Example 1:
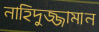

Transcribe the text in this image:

নাহিদুজ্জামান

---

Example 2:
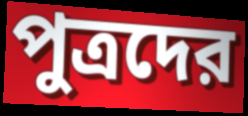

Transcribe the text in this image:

পুত্রদের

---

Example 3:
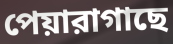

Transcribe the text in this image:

পেয়ারাগাছে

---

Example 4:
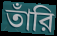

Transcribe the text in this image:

তাঁরি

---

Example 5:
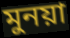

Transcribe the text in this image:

মুনয়া